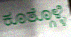
ಕೂತ್ಗೊಳ್ಳಿ